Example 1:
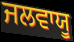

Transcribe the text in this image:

ਜਲਵਾਯੂ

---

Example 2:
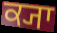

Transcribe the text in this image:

ਕ੍ਯਾ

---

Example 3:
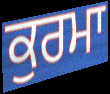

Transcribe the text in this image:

ਕੁਰਮਾ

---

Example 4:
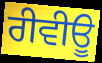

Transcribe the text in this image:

ਰੀਵੀਊ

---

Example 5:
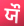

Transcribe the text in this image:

ਯੌ